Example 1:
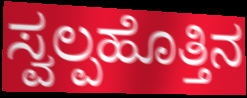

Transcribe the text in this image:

ಸ್ವಲ್ಪಹೊತ್ತಿನ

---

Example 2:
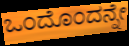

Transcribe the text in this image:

ಒಂದೊಂದನ್ನೇ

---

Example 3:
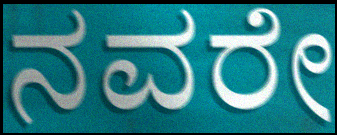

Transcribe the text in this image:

ನವರೇ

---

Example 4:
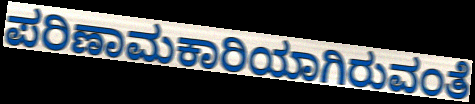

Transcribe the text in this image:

ಪರಿಣಾಮಕಾರಿಯಾಗಿರುವಂತೆ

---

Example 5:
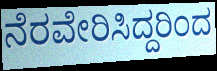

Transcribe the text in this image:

ನೆರವೇರಿಸಿದ್ದರಿಂದ